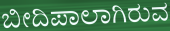
ಬೀದಿಪಾಲಾಗಿರುವ